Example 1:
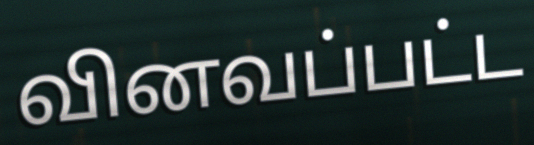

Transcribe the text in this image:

வினவப்பட்ட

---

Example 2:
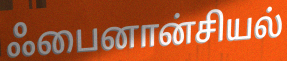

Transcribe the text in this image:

ஃபைனான்சியல்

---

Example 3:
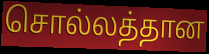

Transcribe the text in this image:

சொல்லத்தான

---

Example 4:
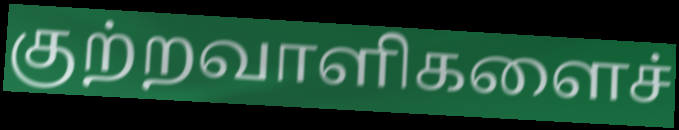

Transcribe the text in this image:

குற்றவாளிகளைச்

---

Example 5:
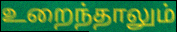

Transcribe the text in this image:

உறைந்தாலும்